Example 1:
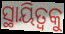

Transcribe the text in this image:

ସ୍ଥାୟିତ୍ୱକୁ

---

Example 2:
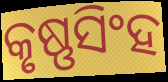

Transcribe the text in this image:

କୃଷ୍ଣସିଂହ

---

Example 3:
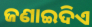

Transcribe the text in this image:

ଜଣାଇଦିଏ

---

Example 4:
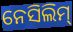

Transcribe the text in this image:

ନେସିଲିମ୍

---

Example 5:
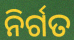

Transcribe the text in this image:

ନିର୍ଗତ